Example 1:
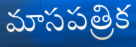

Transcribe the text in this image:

మాసపత్రిక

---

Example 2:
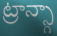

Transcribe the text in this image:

ట్రాన్స్గా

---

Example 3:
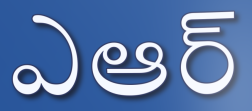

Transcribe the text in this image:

ఎఆర్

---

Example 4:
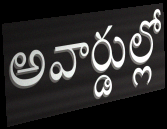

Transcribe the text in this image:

అవార్డుల్లో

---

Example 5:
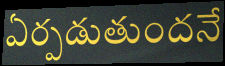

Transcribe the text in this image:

ఏర్పడుతుందనే